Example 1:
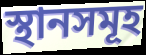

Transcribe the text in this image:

স্থানসমূহ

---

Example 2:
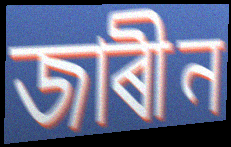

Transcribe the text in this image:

জাৰীন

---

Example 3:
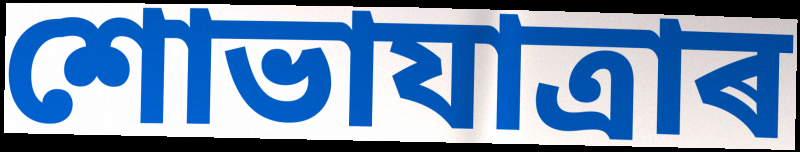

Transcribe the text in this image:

শোভাযাত্ৰাৰ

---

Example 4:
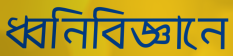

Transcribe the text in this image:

ধ্বনিবিজ্ঞানে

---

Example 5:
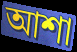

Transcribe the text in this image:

আশা